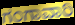
ಗಂಗಾವಾರಿ